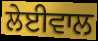
ਲੇਈਵਾਲ